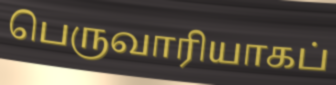
பெருவாரியாகப்